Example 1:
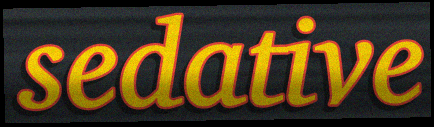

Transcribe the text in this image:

sedative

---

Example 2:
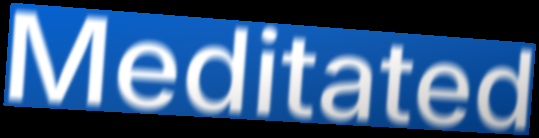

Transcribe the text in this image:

Meditated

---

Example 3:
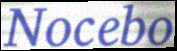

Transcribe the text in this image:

Nocebo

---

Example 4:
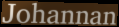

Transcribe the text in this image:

Johannan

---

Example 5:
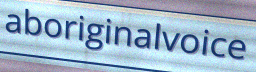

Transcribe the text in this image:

aboriginalvoice